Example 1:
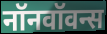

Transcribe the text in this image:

नॉनवॉवन्स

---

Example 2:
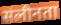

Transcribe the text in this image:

संलीनता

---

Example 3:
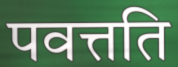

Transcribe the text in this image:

पवत्तति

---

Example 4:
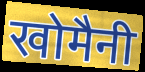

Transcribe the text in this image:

खोमैनी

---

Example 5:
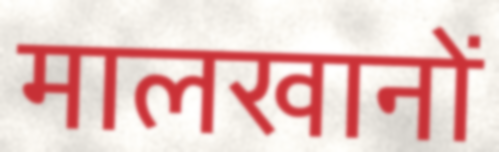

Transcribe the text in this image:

मालखानों